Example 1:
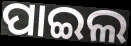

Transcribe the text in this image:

ପାଇଲ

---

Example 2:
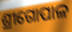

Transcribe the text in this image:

ଶ୍ରୀଗୋପାଳ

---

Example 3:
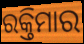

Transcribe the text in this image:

ରକ୍ତିମାର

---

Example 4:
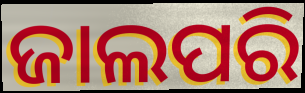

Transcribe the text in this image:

ଜାଲପରି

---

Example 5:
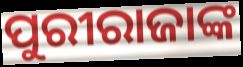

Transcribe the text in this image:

ପୁରୀରାଜାଙ୍କ